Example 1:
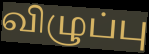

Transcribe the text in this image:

விழுப்பு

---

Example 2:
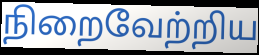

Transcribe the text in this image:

நிறைவேற்றிய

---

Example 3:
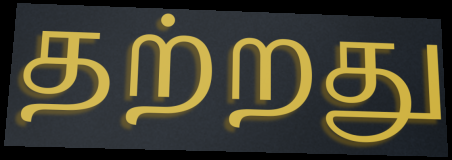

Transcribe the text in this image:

தற்றது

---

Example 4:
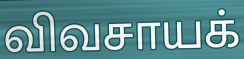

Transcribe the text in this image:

விவசாயக்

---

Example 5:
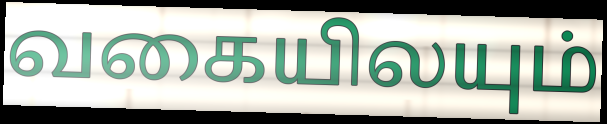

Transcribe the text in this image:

வகையிலயும்